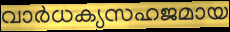
വാർധക്യസഹജമായ